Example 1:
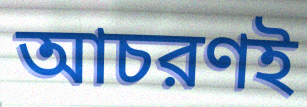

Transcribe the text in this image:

আচরণই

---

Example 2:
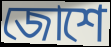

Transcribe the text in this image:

জোশে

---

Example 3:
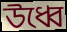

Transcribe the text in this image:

উধ্বে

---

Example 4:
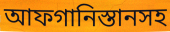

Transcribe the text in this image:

আফগানিস্তানসহ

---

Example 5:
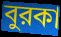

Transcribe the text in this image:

বুরকা